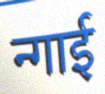
न्गाई